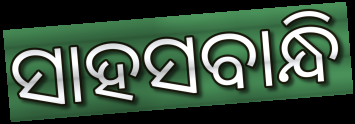
ସାହସବାନ୍ଧି